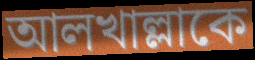
আলখাল্লাকে